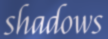
shadows